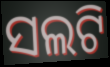
ସଲଟି